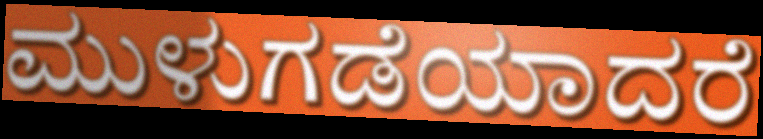
ಮುಳುಗಡೆಯಾದರೆ